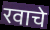
रवाचे